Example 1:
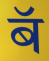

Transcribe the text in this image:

बॅ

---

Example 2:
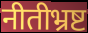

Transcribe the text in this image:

नीतीभ्रष्ट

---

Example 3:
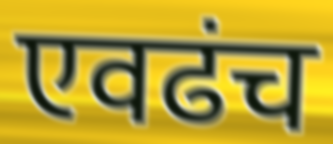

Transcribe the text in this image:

एवढंच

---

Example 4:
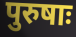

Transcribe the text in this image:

पुरुषाः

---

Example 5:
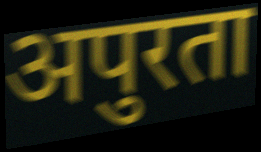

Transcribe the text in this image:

अपुरता